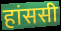
हांससी